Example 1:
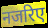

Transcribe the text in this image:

नजरिए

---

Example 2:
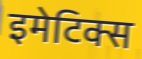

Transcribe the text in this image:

इमेटिक्स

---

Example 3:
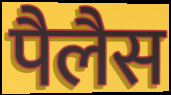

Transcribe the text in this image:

पैलैस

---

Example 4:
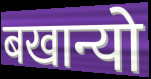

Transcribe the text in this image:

बखान्यो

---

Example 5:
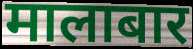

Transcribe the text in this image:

मालाबार